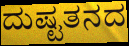
ದುಷ್ಟತನದ